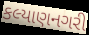
કલ્યાણનગરી